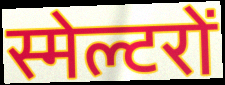
स्मेल्टरों